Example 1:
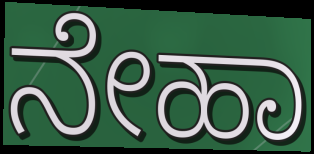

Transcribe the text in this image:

ನೇಹಾ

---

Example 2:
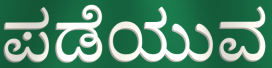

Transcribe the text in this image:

ಪಡೆಯುವ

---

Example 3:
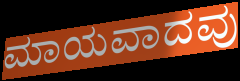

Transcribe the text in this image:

ಮಾಯವಾದವು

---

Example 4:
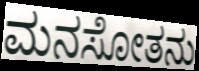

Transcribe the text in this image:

ಮನಸೋತನು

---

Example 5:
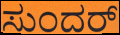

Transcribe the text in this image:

ಸುಂದರ್